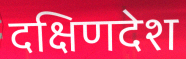
दक्षिणदेश